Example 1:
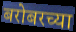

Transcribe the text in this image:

बरोबरच्या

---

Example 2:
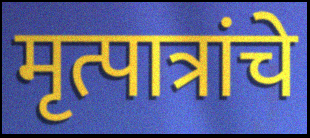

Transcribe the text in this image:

मृत्पात्रांचे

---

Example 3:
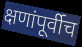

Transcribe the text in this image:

क्षणांपूर्वीच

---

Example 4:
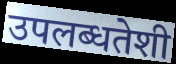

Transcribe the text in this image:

उपलब्धतेशी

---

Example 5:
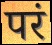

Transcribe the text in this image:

परं